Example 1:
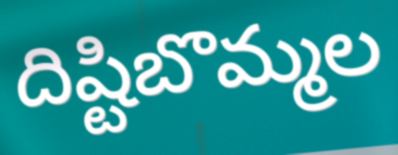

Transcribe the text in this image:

దిష్టిబొమ్మల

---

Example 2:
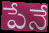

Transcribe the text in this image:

పేనే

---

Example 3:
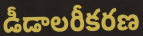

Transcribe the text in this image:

డీడాలరీకరణ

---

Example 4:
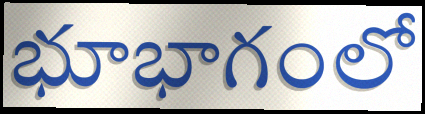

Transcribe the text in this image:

భూభాగంలో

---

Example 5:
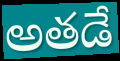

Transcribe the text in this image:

అతడే